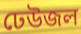
ঢেউজল